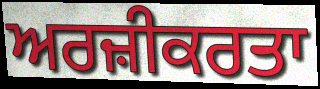
ਅਰਜ਼ੀਕਰਤਾ